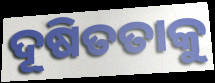
ଦୂଷିତତାକୁ